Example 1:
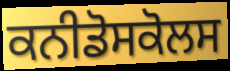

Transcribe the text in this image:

ਕਨੀਡੋਸਕੋਲਸ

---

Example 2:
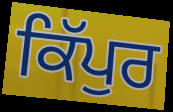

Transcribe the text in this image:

ਕਿੱਪੁਰ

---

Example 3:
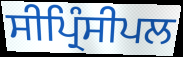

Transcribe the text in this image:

ਸੀਪ੍ਰਿੰਸੀਪਲ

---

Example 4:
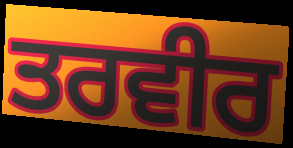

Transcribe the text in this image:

ਤਰਵੀਰ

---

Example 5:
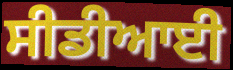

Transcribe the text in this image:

ਸੀਡੀਆਈ